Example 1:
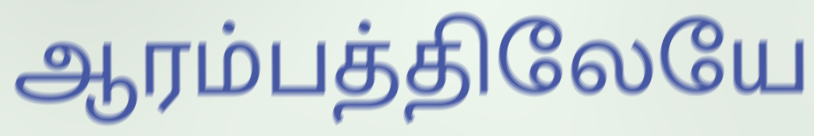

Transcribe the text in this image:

ஆரம்பத்திலேயே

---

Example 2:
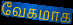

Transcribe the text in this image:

வேகமாக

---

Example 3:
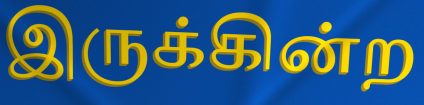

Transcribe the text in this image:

இருக்கின்ற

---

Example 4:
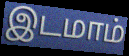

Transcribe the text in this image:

இடமாம்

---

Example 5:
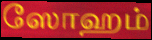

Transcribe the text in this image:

ஸோஹம்